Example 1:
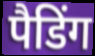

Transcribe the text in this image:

पैडिंग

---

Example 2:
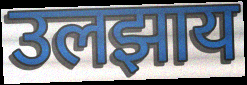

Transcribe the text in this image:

उलझाय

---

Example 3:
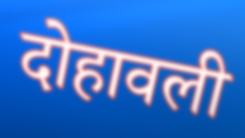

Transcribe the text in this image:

दोहावली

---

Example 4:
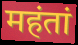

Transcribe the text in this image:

महंतां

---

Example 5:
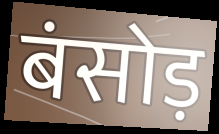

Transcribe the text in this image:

बंसोड़